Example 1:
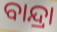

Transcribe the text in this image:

ବାନ୍ଦ୍ରା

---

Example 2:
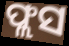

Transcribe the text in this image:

ଫ୍ଲସ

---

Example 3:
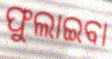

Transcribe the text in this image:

ଫୁଲାଇବା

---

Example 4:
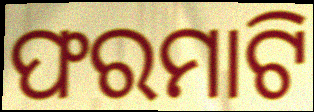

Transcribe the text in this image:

ଫରମାଟି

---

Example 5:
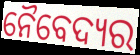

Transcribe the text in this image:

ନୈବେଦ୍ୟର